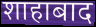
शाहाबाद